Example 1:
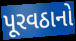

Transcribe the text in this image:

પૂરવઠાનો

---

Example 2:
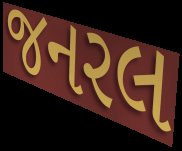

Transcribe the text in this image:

જનરલ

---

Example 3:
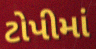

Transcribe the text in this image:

ટોપીમાં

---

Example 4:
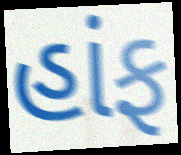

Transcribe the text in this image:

હાંફ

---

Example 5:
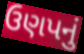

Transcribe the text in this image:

ઉણપનું